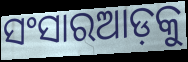
ସଂସାରଆଡ଼କୁ